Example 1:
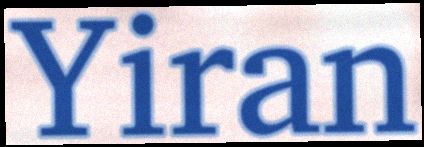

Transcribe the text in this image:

Yiran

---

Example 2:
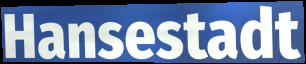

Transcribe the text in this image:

Hansestadt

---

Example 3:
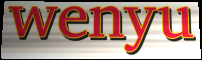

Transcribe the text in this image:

wenyu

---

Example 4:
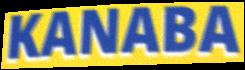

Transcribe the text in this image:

KANABA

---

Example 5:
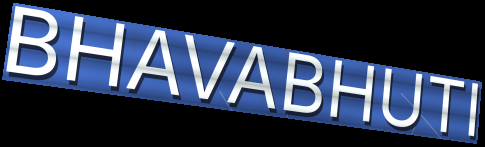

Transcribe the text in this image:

BHAVABHUTI